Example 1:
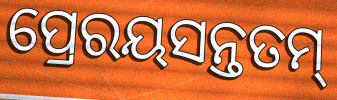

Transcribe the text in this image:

ପ୍ରେରୟସନ୍ତତମ୍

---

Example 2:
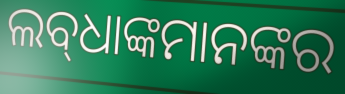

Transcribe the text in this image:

ଲବ୍‌ଧାଙ୍କମାନଙ୍କର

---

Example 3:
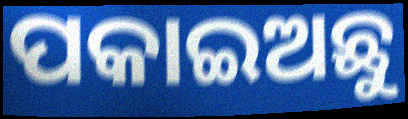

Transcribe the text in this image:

ପକାଇଅଛୁ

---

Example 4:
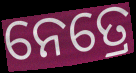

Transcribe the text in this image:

ନେତ୍ରେ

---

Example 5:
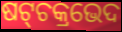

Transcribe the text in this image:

ଷଟ୍‌ଚକ୍ରଭେଦ